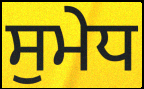
ਸੁਮੇਧ